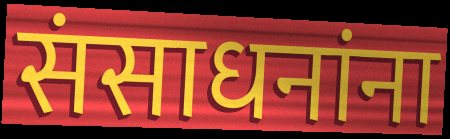
संसाधनांना